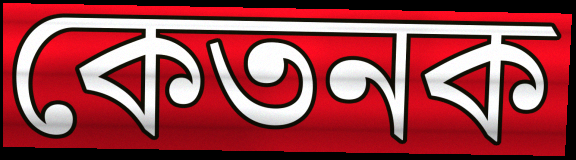
কেতনক